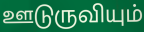
ஊடுருவியும்